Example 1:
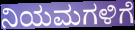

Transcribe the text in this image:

ನಿಯಮಗಳಿಗೆ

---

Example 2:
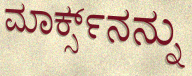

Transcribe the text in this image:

ಮಾರ್ಕ್ಸ್‌ನನ್ನು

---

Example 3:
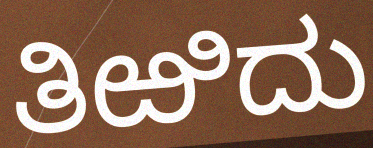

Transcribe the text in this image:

ತಿಱಿದು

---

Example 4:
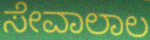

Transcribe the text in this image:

ಸೇವಾಲಾಲ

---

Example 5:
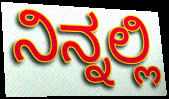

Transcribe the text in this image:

ನಿನ್ನಲ್ಲಿ